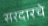
सरदारचे